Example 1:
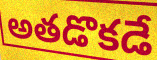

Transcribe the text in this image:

అతడొకడే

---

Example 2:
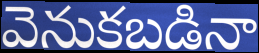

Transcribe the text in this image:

వెనుకబడినా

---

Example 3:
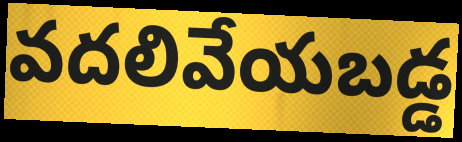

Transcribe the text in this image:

వదలివేయబడ్డ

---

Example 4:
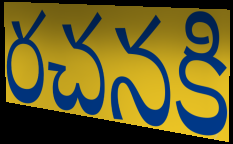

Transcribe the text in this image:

రచనకి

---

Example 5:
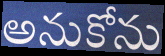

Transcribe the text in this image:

అనుకోను